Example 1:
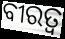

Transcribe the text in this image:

ବୀରତ୍ଵ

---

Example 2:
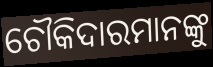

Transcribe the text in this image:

ଚୌକିଦାରମାନଙ୍କୁ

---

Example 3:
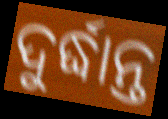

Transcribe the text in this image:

ଦୁର୍ଦ୍ଧାନ୍ତ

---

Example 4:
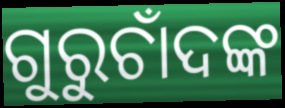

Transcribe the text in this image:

ଗୁରୁଚାଁଦଙ୍କ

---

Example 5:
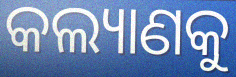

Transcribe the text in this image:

କଲ୍ୟାଣକୁ